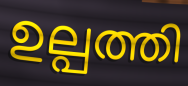
ഉല്പത്തി